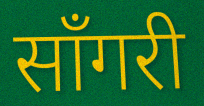
साँगरी